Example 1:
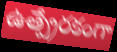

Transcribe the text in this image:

ఉత్ప్రేరకంగా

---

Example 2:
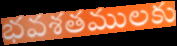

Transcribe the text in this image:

భవశతములకు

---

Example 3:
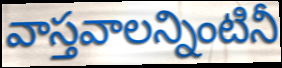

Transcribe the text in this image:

వాస్తవాలన్నింటినీ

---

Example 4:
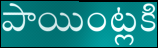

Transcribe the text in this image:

పాయింట్లకి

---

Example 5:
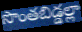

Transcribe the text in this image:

సొంతబిడ్డల్లా